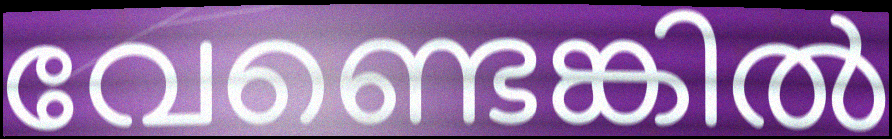
വേണ്ടെങ്കിൽ